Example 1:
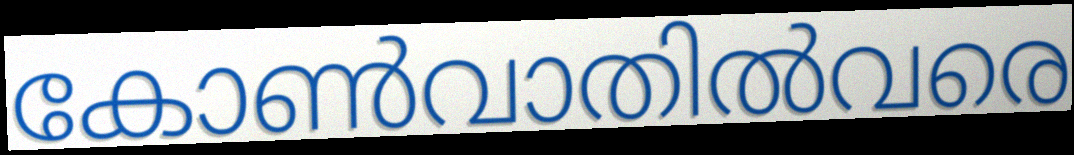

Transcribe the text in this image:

കോൺവാതിൽവരെ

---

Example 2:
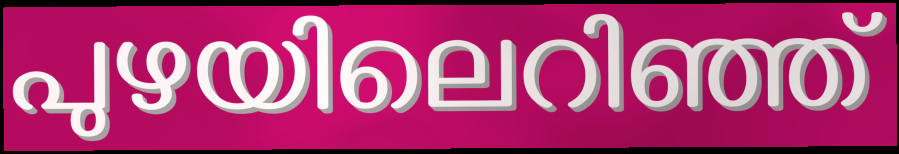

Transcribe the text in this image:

പുഴയിലെറിഞ്ഞ്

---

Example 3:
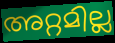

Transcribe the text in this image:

അറ്റമില്ല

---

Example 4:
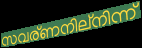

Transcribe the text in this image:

സവര്ണനില്നിന്ന്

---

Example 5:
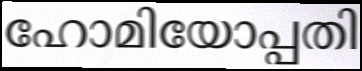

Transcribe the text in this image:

ഹോമിയോപ്പതി